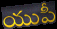
యుపీ